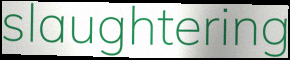
slaughtering